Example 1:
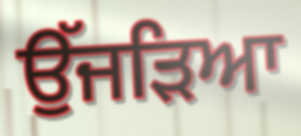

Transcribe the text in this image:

ਉੱਜੜਿਆ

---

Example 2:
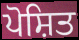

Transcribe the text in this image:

ਪੋਸ਼ਿਤ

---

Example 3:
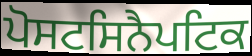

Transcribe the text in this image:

ਪੋਸਟਸਿਨੈਪਟਿਕ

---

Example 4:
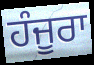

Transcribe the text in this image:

ਹੰਜੂਰਾ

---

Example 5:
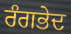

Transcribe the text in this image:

ਰੰਗਭੇਦ